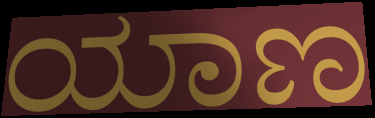
ಯಾಣ